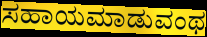
ಸಹಾಯಮಾಡುವಂಥ